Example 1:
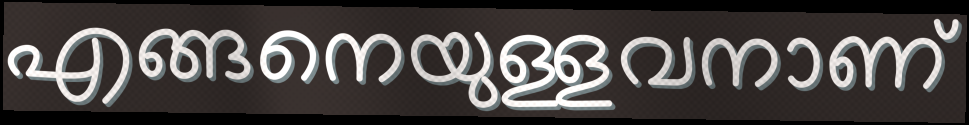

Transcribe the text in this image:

എങ്ങനെയുള്ളവനാണ്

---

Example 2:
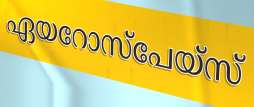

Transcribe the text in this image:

ഏയറോസ്പേയ്സ്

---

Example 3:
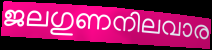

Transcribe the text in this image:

ജലഗുണനിലവാര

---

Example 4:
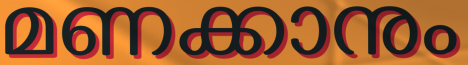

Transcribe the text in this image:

മണക്കാനും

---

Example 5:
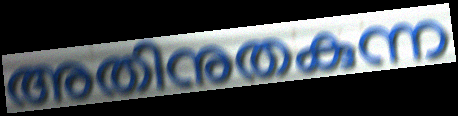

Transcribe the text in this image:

അതിനുതകുന്ന